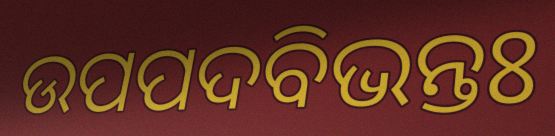
ଉପପଦବିଭନ୍ତଃ